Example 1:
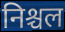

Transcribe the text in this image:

निश्चल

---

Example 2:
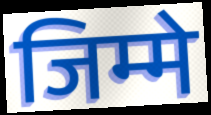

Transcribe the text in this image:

जिम्मे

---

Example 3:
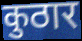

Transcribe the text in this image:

कुठार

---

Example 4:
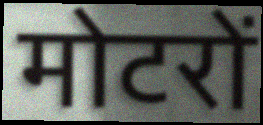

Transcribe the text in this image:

मोटरों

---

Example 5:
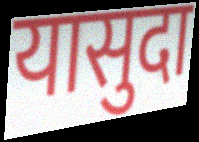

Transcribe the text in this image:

यासुदा